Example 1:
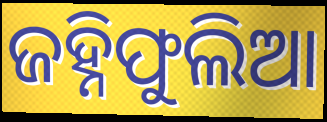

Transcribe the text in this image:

ଜହ୍ନିଫୁଲିଆ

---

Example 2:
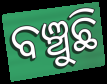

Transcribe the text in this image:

ବଞ୍ଚୁଛି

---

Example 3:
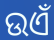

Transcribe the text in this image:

ଉଏଁ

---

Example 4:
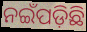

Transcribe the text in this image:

ନଇଁପଡ଼ିଛି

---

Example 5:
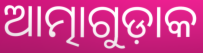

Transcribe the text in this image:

ଆତ୍ମାଗୁଡ଼ାକ